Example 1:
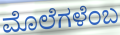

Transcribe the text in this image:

ಮೊಲೆಗಳೆಂಬ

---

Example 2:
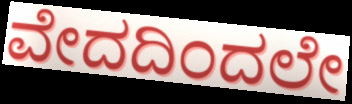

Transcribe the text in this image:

ವೇದದಿಂದಲೇ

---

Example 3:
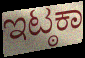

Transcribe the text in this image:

ಇಟ್ಠಕಾ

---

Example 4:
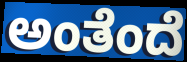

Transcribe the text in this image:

ಅಂತೆಂದೆ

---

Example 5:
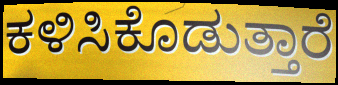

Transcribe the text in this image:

ಕಳಿಸಿಕೊಡುತ್ತಾರೆ